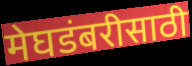
मेघडंबरीसाठी